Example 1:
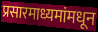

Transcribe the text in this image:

प्रसारमाध्यमांमधून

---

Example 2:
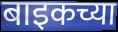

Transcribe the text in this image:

बाइकच्या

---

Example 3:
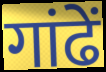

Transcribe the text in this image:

गांढें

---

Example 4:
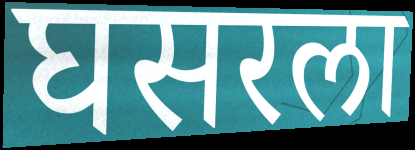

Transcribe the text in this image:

घसरला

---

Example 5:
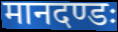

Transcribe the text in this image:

मानदण्डः